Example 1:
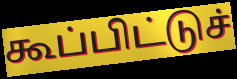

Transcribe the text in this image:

கூப்பிட்டுச்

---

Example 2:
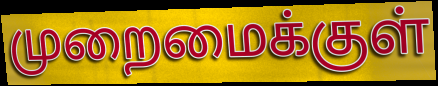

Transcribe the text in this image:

முறைமைக்குள்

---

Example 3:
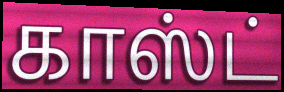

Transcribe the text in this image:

காஸ்ட்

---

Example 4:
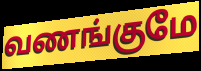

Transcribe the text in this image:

வணங்குமே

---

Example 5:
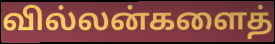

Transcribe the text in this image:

வில்லன்களைத்